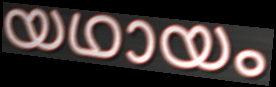
യഥായം